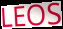
LEOS